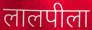
लालपीला